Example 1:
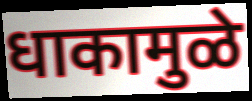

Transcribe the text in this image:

धाकामुळे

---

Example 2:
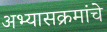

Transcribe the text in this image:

अभ्यासक्रमांचे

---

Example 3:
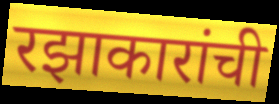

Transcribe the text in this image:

रझाकारांची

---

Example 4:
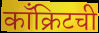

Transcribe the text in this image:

काँक्रिटची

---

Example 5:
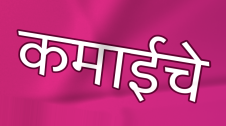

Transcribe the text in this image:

कमाईचे